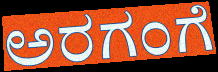
ಅರಗಂಗೆ